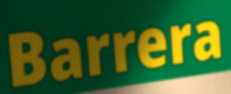
Barrera